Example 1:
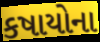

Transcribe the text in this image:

કષાયોના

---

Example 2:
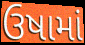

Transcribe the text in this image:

ઉષામાં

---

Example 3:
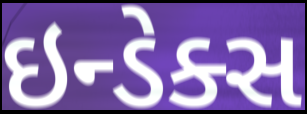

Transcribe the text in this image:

ઇન્ડેક્સ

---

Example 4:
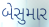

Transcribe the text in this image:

બેસુમાર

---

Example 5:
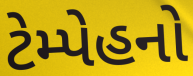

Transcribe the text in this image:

ટેમ્પેહનો